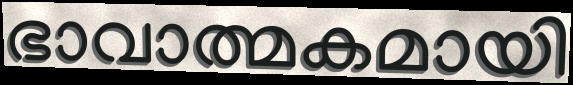
ഭാവാത്മകമായി